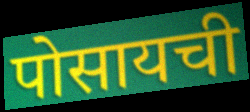
पोसायची